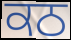
ਕਠ